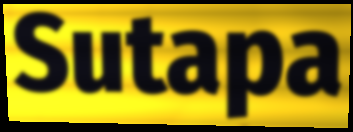
Sutapa